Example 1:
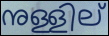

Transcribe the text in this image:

നുള്ളില്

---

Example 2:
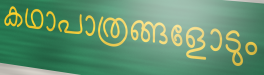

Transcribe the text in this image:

കഥാപാത്രങ്ങളോടും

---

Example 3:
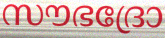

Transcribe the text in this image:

സൗഭദ്രോ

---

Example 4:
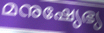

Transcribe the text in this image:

മനുഷ്യേഭ്യ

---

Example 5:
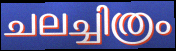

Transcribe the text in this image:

ചലച്ചിത്രം